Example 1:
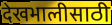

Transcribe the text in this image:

देखभालीसाठी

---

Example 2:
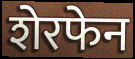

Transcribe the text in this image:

शेरफेन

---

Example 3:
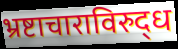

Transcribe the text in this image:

भ्रष्टाचाराविरुद्ध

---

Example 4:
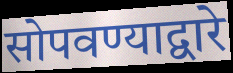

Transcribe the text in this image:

सोपवण्याद्वारे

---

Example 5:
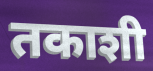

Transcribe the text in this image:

तकाशी